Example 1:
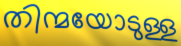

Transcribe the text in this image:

തിന്മയോടുള്ള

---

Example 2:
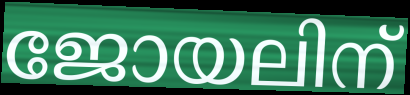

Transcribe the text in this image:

ജോയലിന്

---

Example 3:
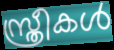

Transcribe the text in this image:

സ്ത്രീകൾ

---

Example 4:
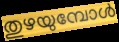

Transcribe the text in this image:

തുഴയുമ്പോൾ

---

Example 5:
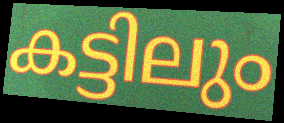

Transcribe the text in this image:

കട്ടിലും